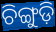
ଚିଙ୍ଗୁଡ଼ି